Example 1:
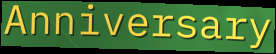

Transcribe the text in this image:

Anniversary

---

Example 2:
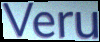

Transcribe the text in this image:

Veru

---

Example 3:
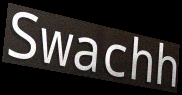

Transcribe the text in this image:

Swachh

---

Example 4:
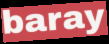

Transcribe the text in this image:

baray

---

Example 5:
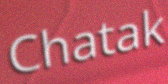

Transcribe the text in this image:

Chatak